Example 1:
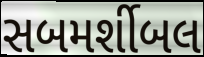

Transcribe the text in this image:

સબમર્શીબલ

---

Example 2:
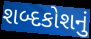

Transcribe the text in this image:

શબ્દકોશનું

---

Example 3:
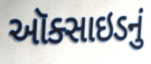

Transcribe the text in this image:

ઑક્સાઇડનું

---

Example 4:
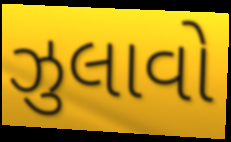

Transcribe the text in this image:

ઝુલાવો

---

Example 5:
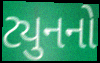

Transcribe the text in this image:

ટ્યુનનો